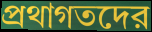
প্রথাগতদের